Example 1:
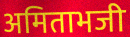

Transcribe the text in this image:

अमिताभजी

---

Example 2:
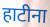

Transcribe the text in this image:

हाटीना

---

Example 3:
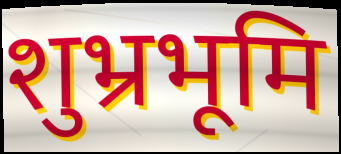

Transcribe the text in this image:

शुभ्रभूमि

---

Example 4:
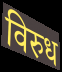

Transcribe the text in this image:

विरुध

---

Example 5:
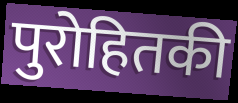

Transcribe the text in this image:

पुरोहितकी